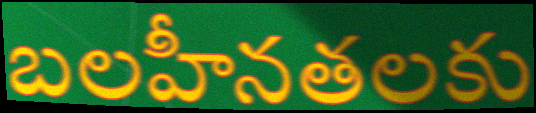
బలహీనతలకు